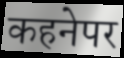
कहनेपर